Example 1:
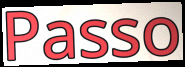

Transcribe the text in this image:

Passo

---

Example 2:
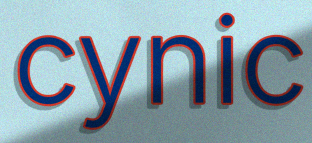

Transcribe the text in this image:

cynic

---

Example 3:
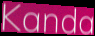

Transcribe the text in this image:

Kanda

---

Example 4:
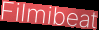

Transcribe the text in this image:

Filmibeat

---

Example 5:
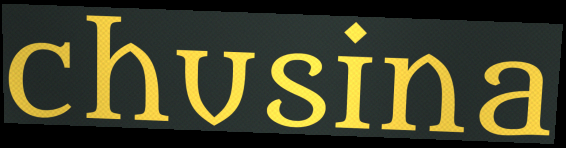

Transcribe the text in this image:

chusina